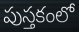
పుస్తకంలో